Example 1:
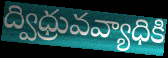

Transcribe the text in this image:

ద్విధ్రువవ్యాధికి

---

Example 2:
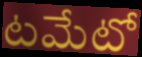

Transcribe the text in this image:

టమేటో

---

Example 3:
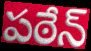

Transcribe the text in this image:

పఠేన్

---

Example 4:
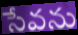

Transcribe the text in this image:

సేవను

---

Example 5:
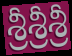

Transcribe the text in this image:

శ్రీశ్రీశ్రీ